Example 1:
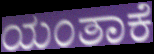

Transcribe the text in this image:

ಯಂತಾಕೆ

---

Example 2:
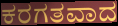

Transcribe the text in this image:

ಕರಗತವಾದ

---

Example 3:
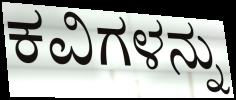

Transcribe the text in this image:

ಕವಿಗಳನ್ನು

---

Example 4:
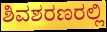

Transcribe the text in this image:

ಶಿವಶರಣರಲ್ಲಿ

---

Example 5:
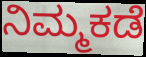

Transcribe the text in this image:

ನಿಮ್ಮಕಡೆ